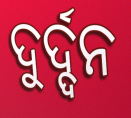
ଦୁର୍ଦ୍ଦନ